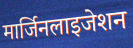
मार्जिनलाइजेशन